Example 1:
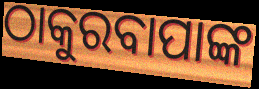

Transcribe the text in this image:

ଠାକୁରବାପାଙ୍କ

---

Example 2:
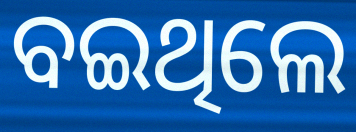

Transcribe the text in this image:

ବଇଥିଲେ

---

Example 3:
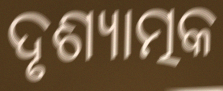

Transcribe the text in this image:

ଦୃଶ୍ୟାତ୍ମକ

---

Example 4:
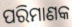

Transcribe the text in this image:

ପରିମାଣକ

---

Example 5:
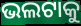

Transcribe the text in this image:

ଭଲଟାକୁ